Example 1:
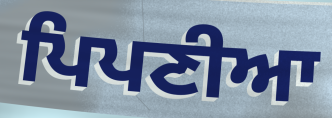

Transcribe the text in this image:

ਪਿਪਣੀਆ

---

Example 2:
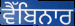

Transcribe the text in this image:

ਵੈੱਬਿਨਾਰ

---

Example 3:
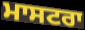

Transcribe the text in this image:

ਮਾਸਟਰਾ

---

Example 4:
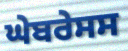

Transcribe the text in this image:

ਘੇਬਰੇਸਸ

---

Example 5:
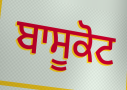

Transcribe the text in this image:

ਬਾਸੂਕੋਟ